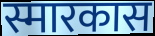
स्मारकास